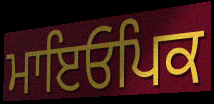
ਮਾਇਓਪਿਕ